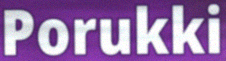
Porukki